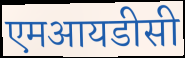
एमआयडीसी